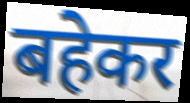
बहेकर